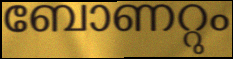
ബോണറ്റും